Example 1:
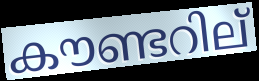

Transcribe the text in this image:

കൗണ്ടറില്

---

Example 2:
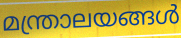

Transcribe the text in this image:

മന്ത്രാലയങ്ങൾ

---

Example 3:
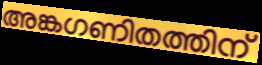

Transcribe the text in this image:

അങ്കഗണിതത്തിന്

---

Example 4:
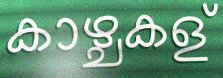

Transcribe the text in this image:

കാഴ്ചകള്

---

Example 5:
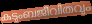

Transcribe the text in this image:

കുടുംബജീവിതവും